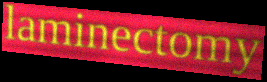
laminectomy